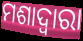
ମଶାଦ୍ୱାରା